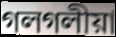
গলগলীয়া